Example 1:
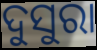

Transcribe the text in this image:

ଦୁସୁରା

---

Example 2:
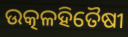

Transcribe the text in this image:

ଉତ୍କଳହିତୈଷୀ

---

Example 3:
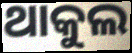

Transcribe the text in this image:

ଥାକୁଲ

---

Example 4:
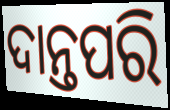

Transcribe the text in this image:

ଦାନ୍ତପରି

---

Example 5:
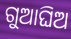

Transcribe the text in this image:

ଗୁଆଘିଅ